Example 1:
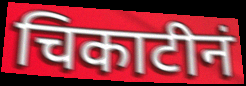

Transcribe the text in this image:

चिकाटीनं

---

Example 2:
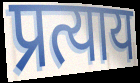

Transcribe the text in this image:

प्रत्याय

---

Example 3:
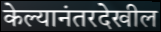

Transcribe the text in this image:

केल्यानंतरदेखील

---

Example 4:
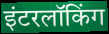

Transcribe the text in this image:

इंटरलॉकिंग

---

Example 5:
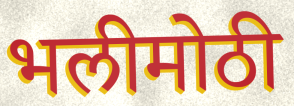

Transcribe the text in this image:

भलीमोठी